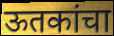
ऊतकांचा